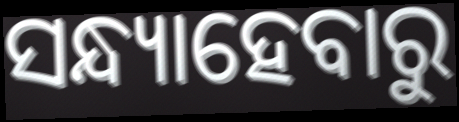
ସନ୍ଧ୍ୟାହେବାରୁ